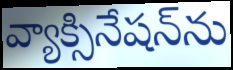
వ్యాక్సినేషన్‌ను